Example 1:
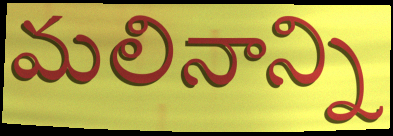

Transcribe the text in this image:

మలినాన్ని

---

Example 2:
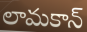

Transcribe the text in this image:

లామకాన్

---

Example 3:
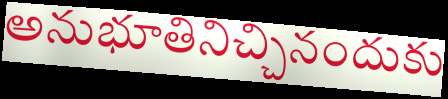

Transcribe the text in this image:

అనుభూతినిచ్చినందుకు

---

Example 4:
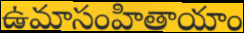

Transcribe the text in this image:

ఉమాసంహితాయాం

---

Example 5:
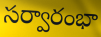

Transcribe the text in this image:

సర్వారంభా